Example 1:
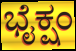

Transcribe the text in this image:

ಭೈಕ್ಷಂ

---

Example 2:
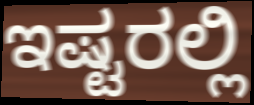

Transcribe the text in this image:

ಇಷ್ಟರಲ್ಲಿ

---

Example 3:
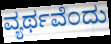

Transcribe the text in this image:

ವ್ಯರ್ಥವೆಂದು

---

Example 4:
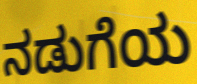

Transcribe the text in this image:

ನಡುಗೆಯ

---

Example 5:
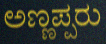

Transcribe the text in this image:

ಅಣ್ಣಪ್ಪರು